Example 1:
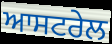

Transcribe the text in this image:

ਆਸਟਰੇਲ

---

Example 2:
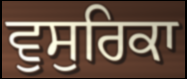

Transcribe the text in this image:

ਵੁਸੁਰਿਕਾ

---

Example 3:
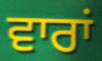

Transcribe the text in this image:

ਵਾਰਾਂ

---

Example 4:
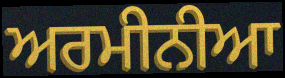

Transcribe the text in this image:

ਅਰਮੀਨੀਆ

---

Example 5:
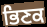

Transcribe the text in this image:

ਭਿਣਕ